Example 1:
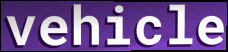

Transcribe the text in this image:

vehicle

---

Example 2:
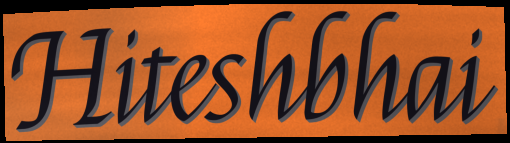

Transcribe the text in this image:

Hiteshbhai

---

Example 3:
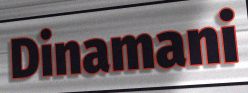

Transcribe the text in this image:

Dinamani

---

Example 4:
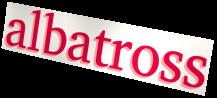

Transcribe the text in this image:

albatross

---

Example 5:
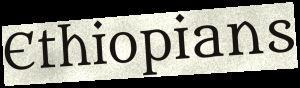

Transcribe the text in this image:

Ethiopians